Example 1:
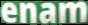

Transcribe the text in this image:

enam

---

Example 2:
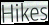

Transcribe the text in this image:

Hikes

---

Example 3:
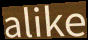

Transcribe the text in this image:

alike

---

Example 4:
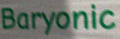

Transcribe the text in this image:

Baryonic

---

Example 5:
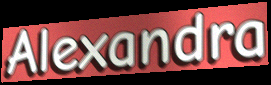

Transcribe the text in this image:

Alexandra